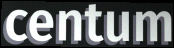
centum